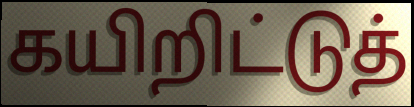
கயிறிட்டுத்